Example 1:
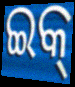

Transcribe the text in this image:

ଇକ୍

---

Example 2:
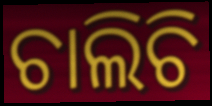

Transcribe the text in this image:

ଚାଲିଚି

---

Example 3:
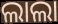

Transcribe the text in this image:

ଲାଲା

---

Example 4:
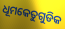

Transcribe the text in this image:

ଧୂମକେତୁଗୁଡିକ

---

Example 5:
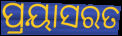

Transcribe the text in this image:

ପ୍ରୟାସରତ